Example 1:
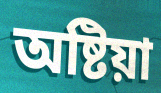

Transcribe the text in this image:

অষ্টিয়া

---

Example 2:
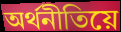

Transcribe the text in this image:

অৰ্থনীতিয়ে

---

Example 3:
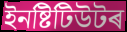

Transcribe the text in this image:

ইনষ্টিটিউটৰ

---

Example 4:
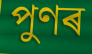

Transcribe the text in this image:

পুণৰ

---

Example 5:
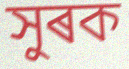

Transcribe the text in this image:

সুৰক